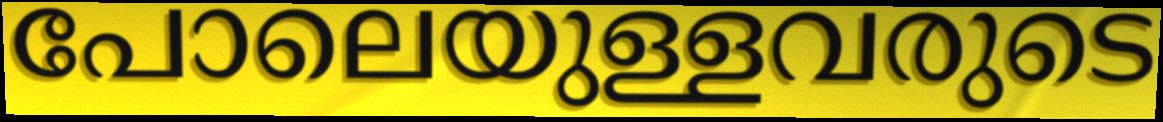
പോലെയുള്ളവരുടെ